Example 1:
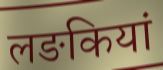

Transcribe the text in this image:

लङकियां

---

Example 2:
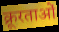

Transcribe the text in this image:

क्रूरताओं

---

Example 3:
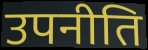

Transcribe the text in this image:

उपनीति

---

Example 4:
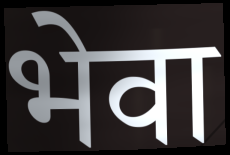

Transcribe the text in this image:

भेवा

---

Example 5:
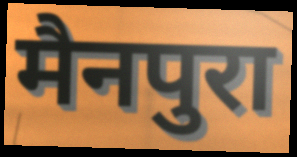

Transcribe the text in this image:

मैनपुरा